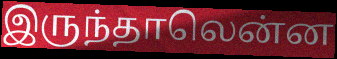
இருந்தாலென்ன